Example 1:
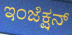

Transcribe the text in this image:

ಇಂಜೆಕ್ಷನ್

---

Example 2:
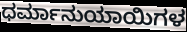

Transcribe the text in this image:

ಧರ್ಮಾನುಯಾಯಿಗಳ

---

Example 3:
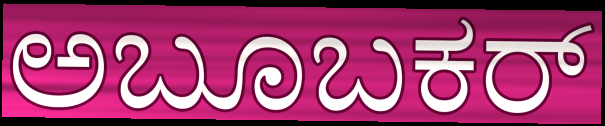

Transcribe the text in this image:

ಅಬೂಬಕರ್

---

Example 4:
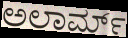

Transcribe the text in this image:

ಅಲಾರ್ಮ್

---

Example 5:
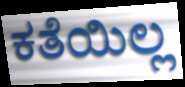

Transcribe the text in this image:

ಕತೆಯಿಲ್ಲ